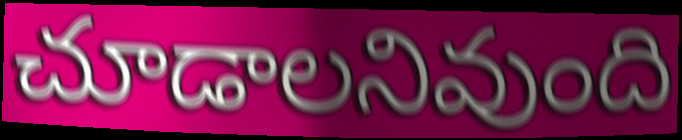
చూడాలనివుంది